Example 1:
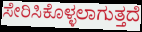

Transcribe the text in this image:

ಸೇರಿಸಿಕೊಳ್ಳಲಾಗುತ್ತದೆ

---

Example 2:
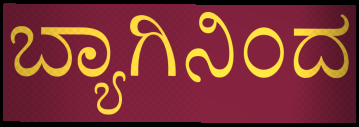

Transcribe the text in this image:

ಬ್ಯಾಗಿನಿಂದ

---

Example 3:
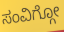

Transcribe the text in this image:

ಸಂವಿಗ್ಗೋ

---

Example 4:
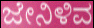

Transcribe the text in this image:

ಜೇನಿಳಿವ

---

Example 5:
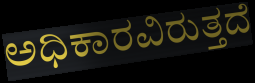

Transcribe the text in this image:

ಅಧಿಕಾರವಿರುತ್ತದೆ